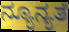
ನ್ಯೂನ್ಯತೆ